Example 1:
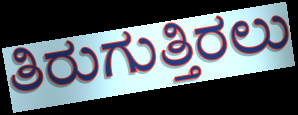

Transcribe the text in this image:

ತಿರುಗುತ್ತಿರಲು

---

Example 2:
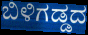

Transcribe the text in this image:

ಬಿಳಿಗಡ್ಡದ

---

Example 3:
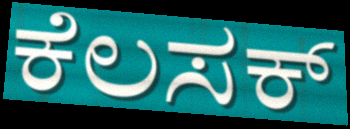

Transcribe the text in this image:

ಕೆಲಸಕ್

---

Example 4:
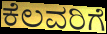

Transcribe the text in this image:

ಕೆಲವರಿಗೆ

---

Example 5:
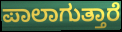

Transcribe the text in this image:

ಪಾಲಾಗುತ್ತಾರೆ